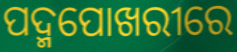
ପଦ୍ମପୋଖରୀରେ